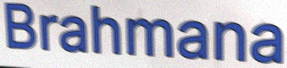
Brahmana